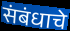
संबंधाचे